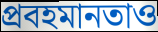
প্রবহমানতাও